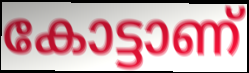
കോട്ടാണ്